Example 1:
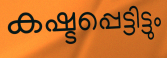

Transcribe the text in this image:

കഷ്ടപ്പെട്ടിട്ടും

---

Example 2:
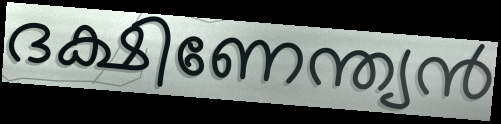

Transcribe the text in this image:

ദക്ഷിണേന്ത്യൻ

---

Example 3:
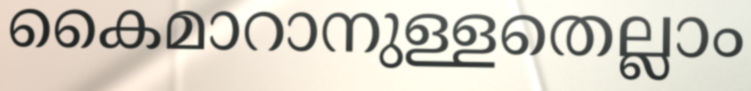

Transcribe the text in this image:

കൈമാറാനുള്ളതെല്ലാം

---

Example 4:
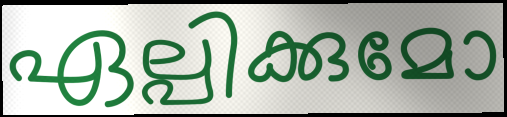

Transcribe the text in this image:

ഏല്പിക്കുമോ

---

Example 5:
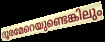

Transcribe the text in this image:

ദൂരമേറെയുണ്ടെങ്കിലും